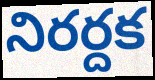
నిరర్దక